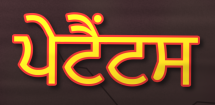
ਪੇਟੈਂਟਸ